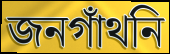
জনগাঁথনি